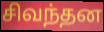
சிவந்தன